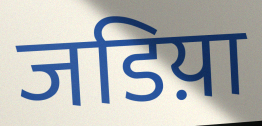
जडिय़ा